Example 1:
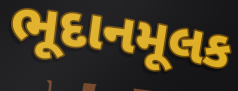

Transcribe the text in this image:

ભૂદાનમૂલક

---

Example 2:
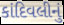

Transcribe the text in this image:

કાંદિવલીનું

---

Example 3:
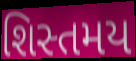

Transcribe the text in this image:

શિસ્તમય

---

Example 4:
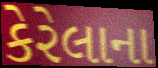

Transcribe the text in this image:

કેરેલાના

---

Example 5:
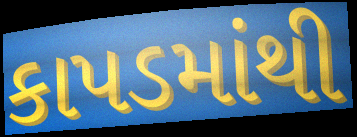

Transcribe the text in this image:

કાપડમાંથી